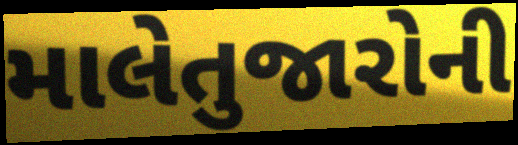
માલેતુજારોની